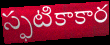
స్ఫటికాకార